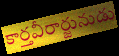
కార్తవీరార్జునుడు